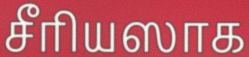
சீரியஸாக